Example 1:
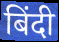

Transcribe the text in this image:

बिंदी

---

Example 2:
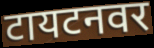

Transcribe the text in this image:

टायटनवर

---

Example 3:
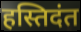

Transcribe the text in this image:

हस्तिदंत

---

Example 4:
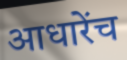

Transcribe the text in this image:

आधारेंच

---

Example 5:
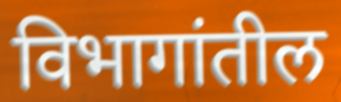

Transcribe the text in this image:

विभागांतील